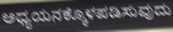
ಅಧ್ಯಯನಕ್ಕೊಳಪಡಿಸುವುದು